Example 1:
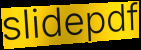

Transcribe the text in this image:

slidepdf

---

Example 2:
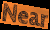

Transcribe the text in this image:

Near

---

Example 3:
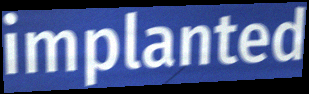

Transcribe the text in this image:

implanted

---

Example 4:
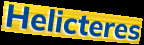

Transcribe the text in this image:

Helicteres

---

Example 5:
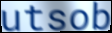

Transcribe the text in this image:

utsob